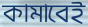
কামাবেই